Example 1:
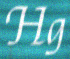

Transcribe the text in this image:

Hg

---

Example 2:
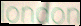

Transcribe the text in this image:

london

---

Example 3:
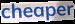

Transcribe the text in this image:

cheaper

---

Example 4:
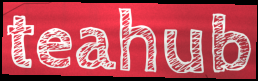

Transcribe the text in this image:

teahub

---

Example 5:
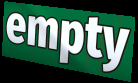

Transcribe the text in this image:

empty